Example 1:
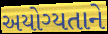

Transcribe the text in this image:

અયોગ્યતાને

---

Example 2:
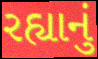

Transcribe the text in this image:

રહ્યાનું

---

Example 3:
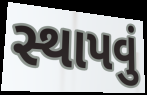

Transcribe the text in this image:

સ્થાપવું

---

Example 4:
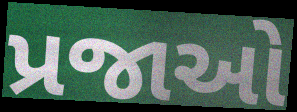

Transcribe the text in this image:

પ્રજાઓ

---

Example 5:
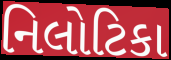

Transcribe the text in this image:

નિલોટિકા